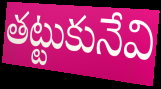
తట్టుకునేవి